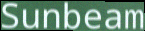
Sunbeam